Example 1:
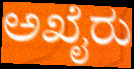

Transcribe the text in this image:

ಅಖೈರು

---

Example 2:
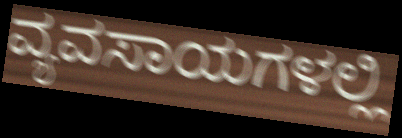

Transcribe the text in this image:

ವ್ಯವಸಾಯಗಳಲ್ಲಿ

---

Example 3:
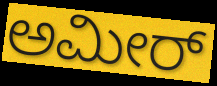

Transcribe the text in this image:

ಅಮೀರ್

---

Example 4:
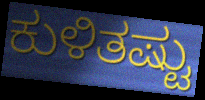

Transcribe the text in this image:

ಕುಳಿತಷ್ಟು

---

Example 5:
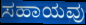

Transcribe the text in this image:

ಸಹಾಯವು